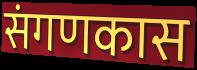
संगणकास